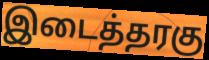
இடைத்தரகு